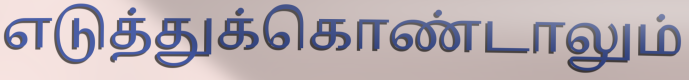
எடுத்துக்கொண்டாலும்